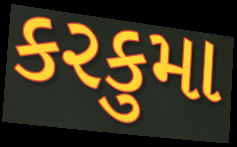
કરકુમા